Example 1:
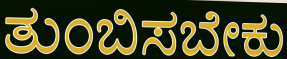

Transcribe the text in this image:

ತುಂಬಿಸಬೇಕು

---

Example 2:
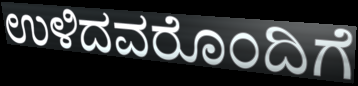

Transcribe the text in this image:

ಉಳಿದವರೊಂದಿಗೆ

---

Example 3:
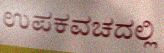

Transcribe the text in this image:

ಉಪಕವಚದಲ್ಲಿ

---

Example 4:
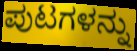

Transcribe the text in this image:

ಪುಟಗಳನ್ನು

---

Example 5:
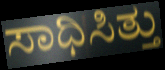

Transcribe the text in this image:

ಸಾಧಿಸಿತ್ತು